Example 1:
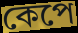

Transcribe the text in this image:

কেপে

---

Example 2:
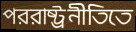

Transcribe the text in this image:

পররাষ্ট্রনীতিতে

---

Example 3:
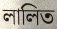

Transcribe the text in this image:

লালিত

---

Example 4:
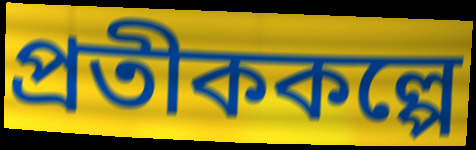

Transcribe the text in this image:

প্রতীককল্পে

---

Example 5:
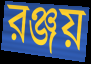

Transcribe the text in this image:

রঞ্জয়